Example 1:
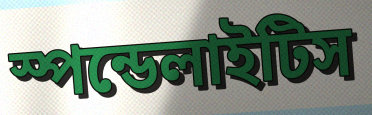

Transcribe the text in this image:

স্পন্ডেলাইটিস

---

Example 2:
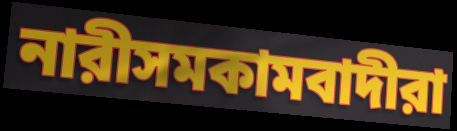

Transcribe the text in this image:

নারীসমকামবাদীরা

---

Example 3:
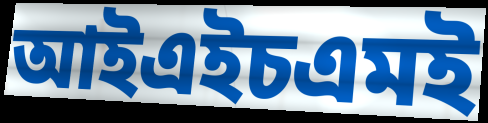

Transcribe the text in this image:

আইএইচএমই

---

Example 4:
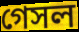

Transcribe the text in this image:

গেসল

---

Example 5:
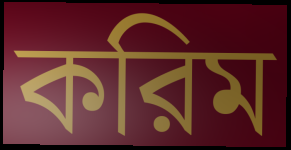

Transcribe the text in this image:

করিম